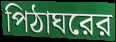
পিঠাঘরের